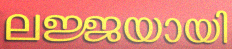
ലജ്ജയായി